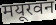
मयूरवन